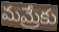
మమ్రేకు